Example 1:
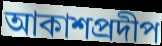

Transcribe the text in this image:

আকাশপ্রদীপ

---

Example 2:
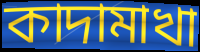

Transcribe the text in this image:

কাদামাখা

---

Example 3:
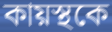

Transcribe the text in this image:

কায়স্থকে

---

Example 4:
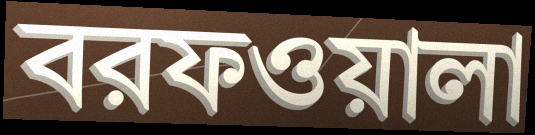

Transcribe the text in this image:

বরফওয়ালা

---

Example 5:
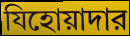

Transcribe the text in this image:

যিহোয়াদার